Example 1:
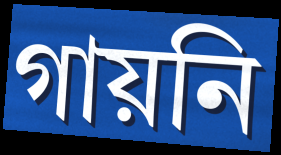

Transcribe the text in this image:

গায়নি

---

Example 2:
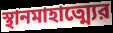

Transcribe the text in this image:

স্থানমাহাত্ম্যের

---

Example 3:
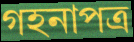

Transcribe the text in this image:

গহনাপত্র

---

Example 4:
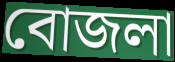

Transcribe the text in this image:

বোজলা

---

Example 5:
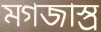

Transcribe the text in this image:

মগজাস্ত্র